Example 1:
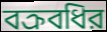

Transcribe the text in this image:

বক্রবধির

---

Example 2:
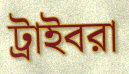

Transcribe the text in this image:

ট্রাইবরা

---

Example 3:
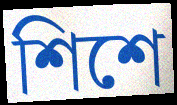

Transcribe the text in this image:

শিশে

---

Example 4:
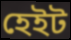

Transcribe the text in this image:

হেইট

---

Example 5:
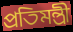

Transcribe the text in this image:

প্রতিমন্ত্রী